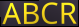
ABCR